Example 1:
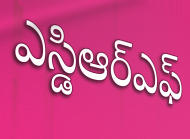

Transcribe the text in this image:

ఎస్డిఆర్ఎఫ్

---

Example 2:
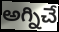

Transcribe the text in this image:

అగ్నిచే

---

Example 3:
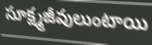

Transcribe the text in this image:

సూక్ష్మజీవులుంటాయి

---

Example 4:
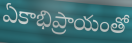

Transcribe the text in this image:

ఏకాభిప్రాయంతో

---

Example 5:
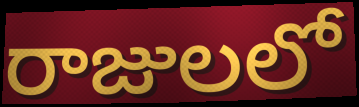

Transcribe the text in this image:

రాజులలో